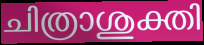
ചിത്രാശുക്തി